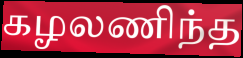
கழலணிந்த